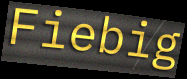
Fiebig